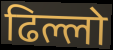
ढिल्लो